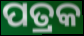
ପତ୍ରକ